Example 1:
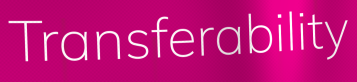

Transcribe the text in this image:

Transferability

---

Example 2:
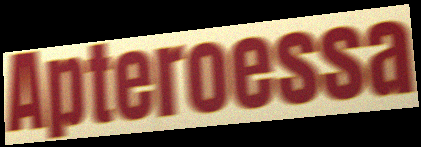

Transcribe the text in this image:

Apteroessa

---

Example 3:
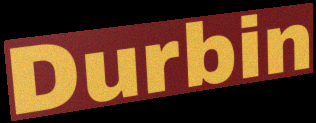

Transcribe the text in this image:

Durbin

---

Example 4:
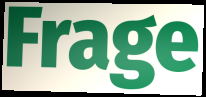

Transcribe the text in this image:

Frage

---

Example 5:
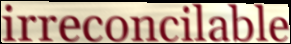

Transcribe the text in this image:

irreconcilable